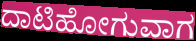
ದಾಟಿಹೋಗುವಾಗ